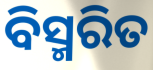
ବିସ୍ମରିତ